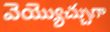
వెయ్యొచ్చుగా